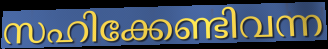
സഹിക്കേണ്ടിവന്ന